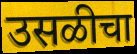
उसळीचा